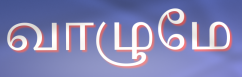
வாழுமே